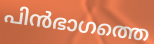
പിൻഭാഗത്തെ